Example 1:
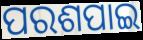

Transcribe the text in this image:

ପରଶପାଇ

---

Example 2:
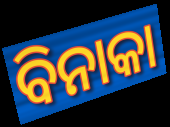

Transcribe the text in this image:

ବିନାକା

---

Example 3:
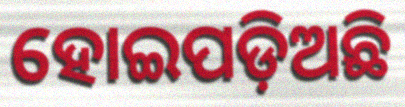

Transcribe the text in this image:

ହୋଇପଡ଼ିଅଛି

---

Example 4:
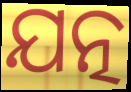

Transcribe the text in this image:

ଯତ୍ନ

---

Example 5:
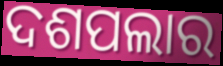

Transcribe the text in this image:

ଦଶପଲାର